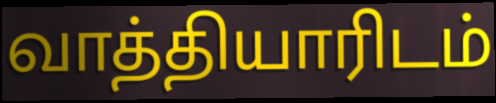
வாத்தியாரிடம்